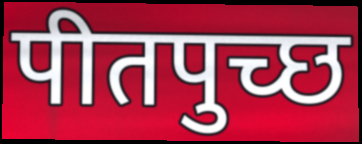
पीतपुच्छ